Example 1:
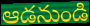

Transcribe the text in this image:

ఆడనుండి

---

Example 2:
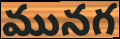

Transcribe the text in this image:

మునగ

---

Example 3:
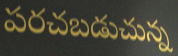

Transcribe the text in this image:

పరచబడుచున్న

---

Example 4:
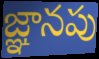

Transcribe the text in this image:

జ్ఞానపు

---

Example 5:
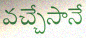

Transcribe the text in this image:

వచ్చేసానే